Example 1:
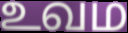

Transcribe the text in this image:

உவம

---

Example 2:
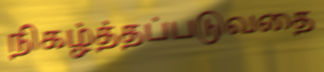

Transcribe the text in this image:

நிகழ்த்தப்படுவதை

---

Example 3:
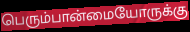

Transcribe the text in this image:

பெரும்பான்மையோருக்கு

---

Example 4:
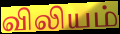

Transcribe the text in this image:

விலியம்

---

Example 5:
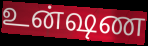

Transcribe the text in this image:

உன்ஷண